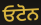
ਓਟੋਨ